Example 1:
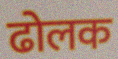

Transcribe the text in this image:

ढोलक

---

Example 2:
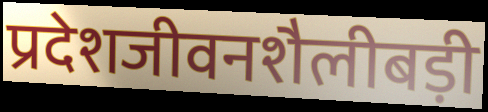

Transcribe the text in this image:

प्रदेशजीवनशैलीबड़ी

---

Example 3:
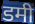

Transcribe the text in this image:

डमी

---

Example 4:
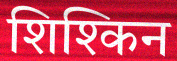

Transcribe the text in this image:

शिश्किन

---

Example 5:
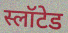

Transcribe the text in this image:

स्लॉटेड